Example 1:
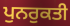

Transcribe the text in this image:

ਪੁਨਰੁਕਤੀ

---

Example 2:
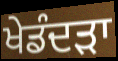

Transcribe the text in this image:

ਖੇਡੰਦੜਾ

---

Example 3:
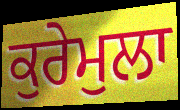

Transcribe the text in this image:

ਕੁਰੇਮੁਲਾ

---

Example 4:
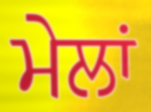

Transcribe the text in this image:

ਮੇਲਾਂ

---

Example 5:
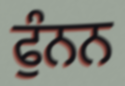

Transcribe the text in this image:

ਫੁੰਨਨ